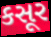
કસૂર